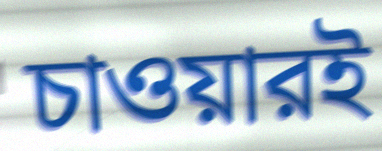
চাওয়ারই